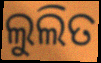
ଲୁଲିତ